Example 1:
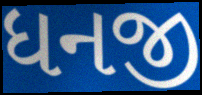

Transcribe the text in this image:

ધનજી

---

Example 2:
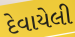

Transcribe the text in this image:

દેવાયેલી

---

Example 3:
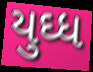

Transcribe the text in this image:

યુઘ્ધ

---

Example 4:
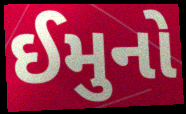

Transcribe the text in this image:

ઈમુનો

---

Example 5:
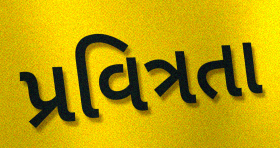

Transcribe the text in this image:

પ્રવિત્રતા